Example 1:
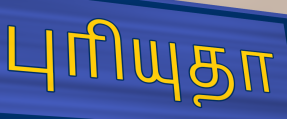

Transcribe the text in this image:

புரியுதா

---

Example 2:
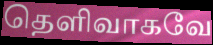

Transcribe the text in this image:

தெளிவாகவே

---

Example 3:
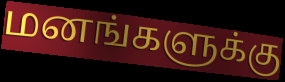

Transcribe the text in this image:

மனங்களுக்கு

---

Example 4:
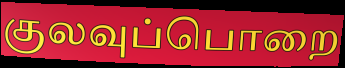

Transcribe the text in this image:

குலவுப்பொறை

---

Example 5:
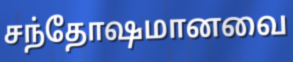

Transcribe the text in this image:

சந்தோஷமானவை